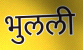
भुलली